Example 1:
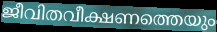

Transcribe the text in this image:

ജീവിതവീക്ഷണത്തെയും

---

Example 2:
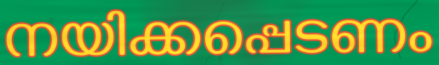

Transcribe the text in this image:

നയിക്കപ്പെടണം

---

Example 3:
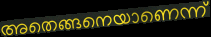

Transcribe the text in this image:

അതെങ്ങനെയാണെന്ന്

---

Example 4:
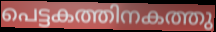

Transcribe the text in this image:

പെട്ടകത്തിനകത്തു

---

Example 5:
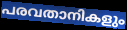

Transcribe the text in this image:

പരവതാനികളും